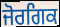
ਜੋਰਗਿਕ